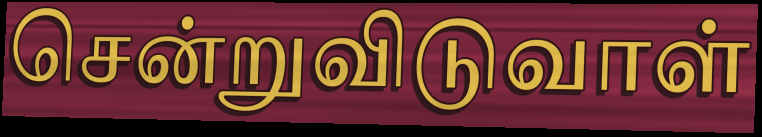
சென்றுவிடுவாள்